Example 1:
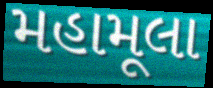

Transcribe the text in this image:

મહામૂલા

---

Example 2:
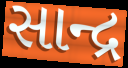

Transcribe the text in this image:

સાન્દ્ર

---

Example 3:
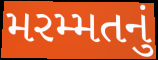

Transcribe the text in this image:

મરમ્મતનું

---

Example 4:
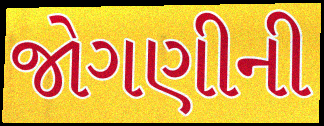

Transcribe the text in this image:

જોગણીની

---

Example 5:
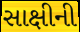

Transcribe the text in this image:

સાક્ષીની